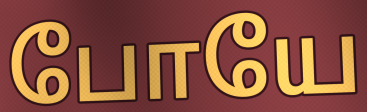
போயே